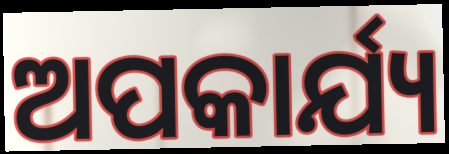
ଅପକାର୍ଯ୍ୟ